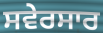
ਸਵੇਰਸਾਰ